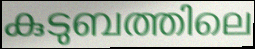
കുടുബത്തിലെ